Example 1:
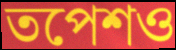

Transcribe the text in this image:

তপেশও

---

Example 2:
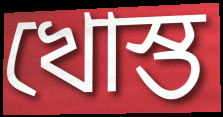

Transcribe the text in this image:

খোস্ত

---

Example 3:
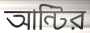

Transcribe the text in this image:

আন্টির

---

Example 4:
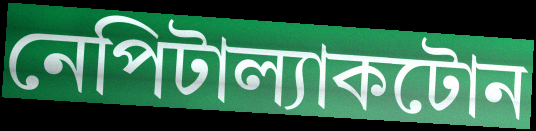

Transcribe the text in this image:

নেপিটাল্যাকটোন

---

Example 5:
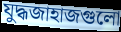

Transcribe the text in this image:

যুদ্ধজাহাজগুলো